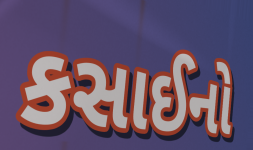
કસાઈનો